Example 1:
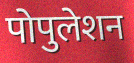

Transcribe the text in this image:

पोपुलेशन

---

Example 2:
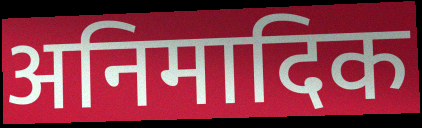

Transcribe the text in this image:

अनिमादिक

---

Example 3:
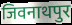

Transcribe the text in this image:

जिवनाथपुर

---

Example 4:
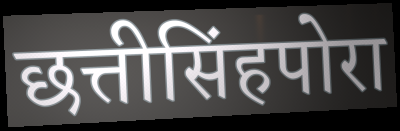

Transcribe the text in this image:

छत्तीसिंहपोरा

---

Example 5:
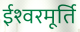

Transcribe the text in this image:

ईश्वरमूर्ति